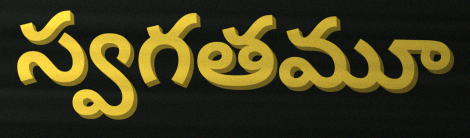
స్వగతమూ